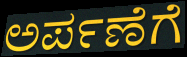
ಅರ್ಪಣೆಗೆ